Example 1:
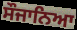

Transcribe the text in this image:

ਸੌਜਾਨਿਆ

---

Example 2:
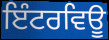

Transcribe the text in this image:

ਇੰਟਰਵਿਊ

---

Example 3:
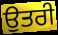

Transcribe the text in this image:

ਉਤਰੀ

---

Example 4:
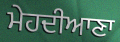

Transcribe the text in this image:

ਮੇਹਦੀਆਣਾ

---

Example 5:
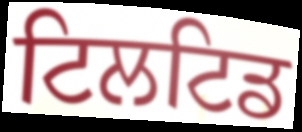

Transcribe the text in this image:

ਟਿਲਟਿਡ